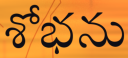
శోభను